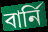
বার্নি